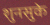
शुनसुके